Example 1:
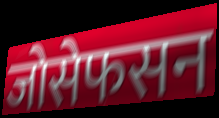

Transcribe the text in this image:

जोसेफसन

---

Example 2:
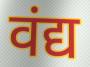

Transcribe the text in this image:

वंद्य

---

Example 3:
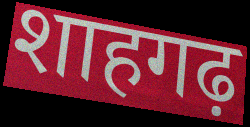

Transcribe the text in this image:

शाहगढ़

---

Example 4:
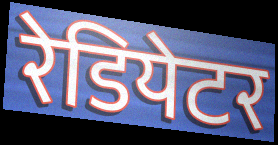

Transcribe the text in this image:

रेडियेटर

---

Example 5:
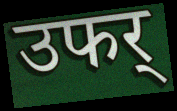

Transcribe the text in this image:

उफर्